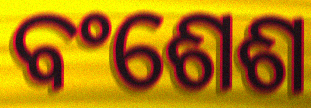
ବଂଶେଶ